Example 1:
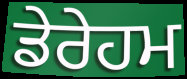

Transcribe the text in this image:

ਡੇਰੇਹਮ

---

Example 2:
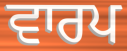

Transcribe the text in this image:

ਵਾਰਪ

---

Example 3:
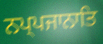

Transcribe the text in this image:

ਨਪ੍ਪਜਾਨਾਤਿ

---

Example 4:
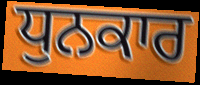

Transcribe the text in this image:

ਧੁਨਕਾਰ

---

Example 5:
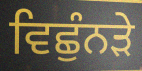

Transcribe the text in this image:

ਵਿਛੁੰਨੜੇ